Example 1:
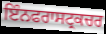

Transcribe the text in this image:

ਇੰਨਫਰਾਸਟ੍ਰਕਚਰ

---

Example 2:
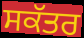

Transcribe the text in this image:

ਸਕੱਤਰ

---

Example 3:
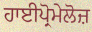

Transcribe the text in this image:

ਹਾਈਪ੍ਰੋਮੇਲੋਜ਼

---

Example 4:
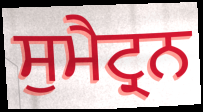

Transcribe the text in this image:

ਸੁਮੈਟ੍ਰਨ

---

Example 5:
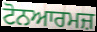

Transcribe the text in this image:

ਟੋਨਆਰਮਜ਼